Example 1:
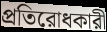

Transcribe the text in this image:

প্রতিরোধকারী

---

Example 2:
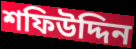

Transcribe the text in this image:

শফিউদ্দিন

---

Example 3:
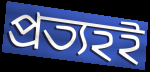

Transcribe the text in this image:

প্রত্যহই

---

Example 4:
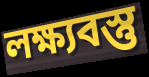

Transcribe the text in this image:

লক্ষ্যবস্তু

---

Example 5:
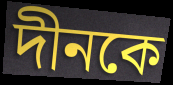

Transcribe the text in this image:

দীনকে